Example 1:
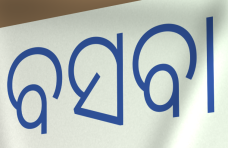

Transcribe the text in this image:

ବସବା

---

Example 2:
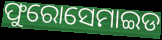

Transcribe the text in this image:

ଫୁରୋସେମାଇଡ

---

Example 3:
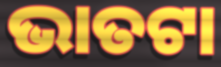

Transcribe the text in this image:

ଭାତଟା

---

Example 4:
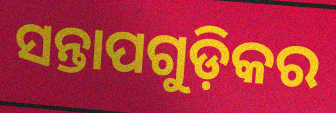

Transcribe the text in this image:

ସନ୍ତାପଗୁଡ଼ିକର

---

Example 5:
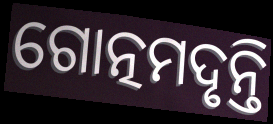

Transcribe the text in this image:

ଗୋତ୍ନମଦୃନ୍ତି